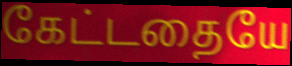
கேட்டதையே